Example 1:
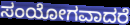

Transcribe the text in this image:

ಸಂಯೋಗವಾದರೆ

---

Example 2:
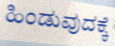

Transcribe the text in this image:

ಹಿಂಡುವುದಕ್ಕೆ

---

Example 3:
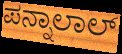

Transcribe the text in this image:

ಪನ್ನಾಲಾಲ್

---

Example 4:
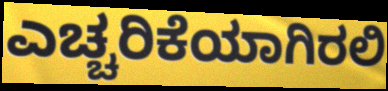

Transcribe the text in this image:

ಎಚ್ಚರಿಕೆಯಾಗಿರಲಿ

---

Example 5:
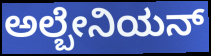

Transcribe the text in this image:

ಅಲ್ಬೇನಿಯನ್